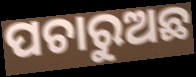
ପଚାରୁଅଛ